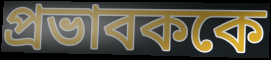
প্রভাবককে